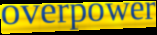
overpower